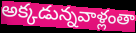
అక్కడున్నవాళ్లంతా